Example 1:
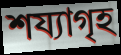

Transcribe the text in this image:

শয্যাগৃহ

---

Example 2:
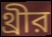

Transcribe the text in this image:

থ্রীর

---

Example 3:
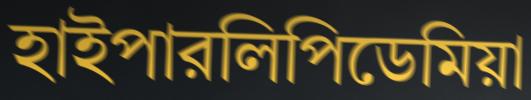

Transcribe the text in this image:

হাইপারলিপিডেমিয়া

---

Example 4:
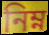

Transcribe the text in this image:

নিম্ন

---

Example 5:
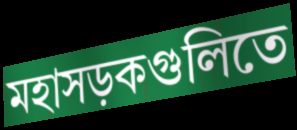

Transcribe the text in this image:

মহাসড়কগুলিতে